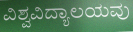
ವಿಶ್ವವಿದ್ಯಾಲಯವು